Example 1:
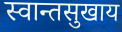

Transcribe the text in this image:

स्वान्तसुखाय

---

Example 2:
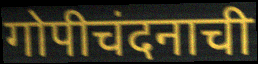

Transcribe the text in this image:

गोपीचंदनाची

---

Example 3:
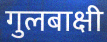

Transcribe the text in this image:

गुलबाक्षी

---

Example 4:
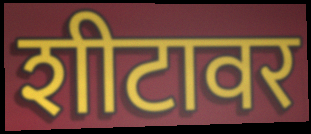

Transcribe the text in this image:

शीटावर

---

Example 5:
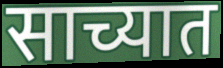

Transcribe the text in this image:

साच्यात